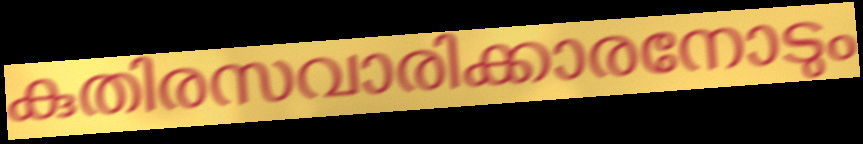
കുതിരസവാരിക്കാരനോടും